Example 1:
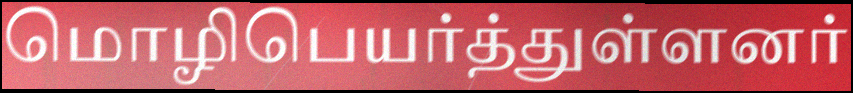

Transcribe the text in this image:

மொழிபெயர்த்துள்ளனர்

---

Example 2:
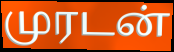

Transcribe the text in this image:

முரடன்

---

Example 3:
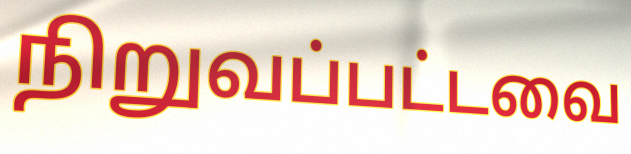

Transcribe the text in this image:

நிறுவப்பட்டவை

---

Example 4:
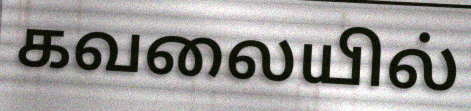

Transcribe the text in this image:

கவலையில்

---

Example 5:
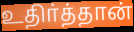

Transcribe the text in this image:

உதிர்த்தான்